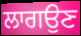
ਲਾਗਉਣ